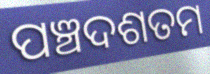
ପଞ୍ଚଦଶତମ